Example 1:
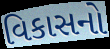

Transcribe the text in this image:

વિકાસનો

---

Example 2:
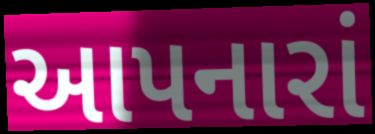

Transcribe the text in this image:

આપનારાં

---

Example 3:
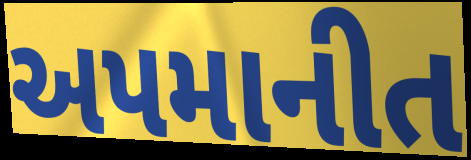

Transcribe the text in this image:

અપમાનીત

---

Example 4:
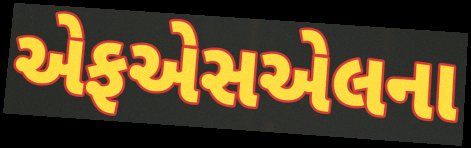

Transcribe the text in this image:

એફએસએલના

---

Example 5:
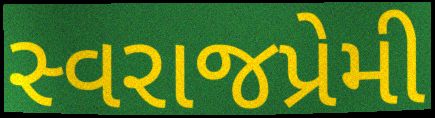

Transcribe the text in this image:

સ્વરાજપ્રેમી